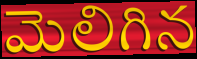
మెలిగిన